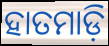
ହାତମାଡ଼ି